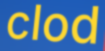
clod